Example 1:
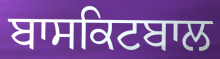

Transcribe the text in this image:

ਬਾਸਕਿਟਬਾਲ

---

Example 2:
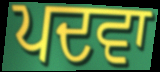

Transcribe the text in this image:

ਪਦਵਾ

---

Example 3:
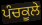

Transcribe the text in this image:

ਪੰਚਕੂਲੇ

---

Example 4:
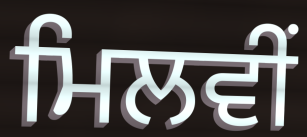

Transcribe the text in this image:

ਮਿਲਵੀਂ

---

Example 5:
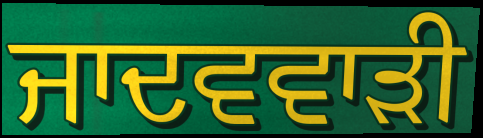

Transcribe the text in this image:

ਜਾਦਵਵਾੜੀ